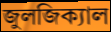
জুলজিক্যাল